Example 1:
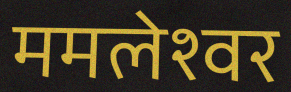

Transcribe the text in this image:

ममलेश्वर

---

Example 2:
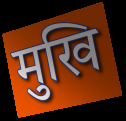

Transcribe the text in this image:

मुखि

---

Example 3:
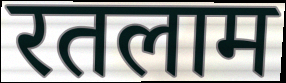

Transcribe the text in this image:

रतलाम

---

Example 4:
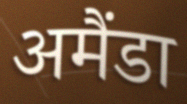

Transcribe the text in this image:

अमैंडा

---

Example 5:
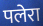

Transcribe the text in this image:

पलेरा